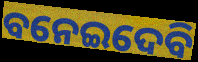
ବନେଇଦେବି